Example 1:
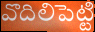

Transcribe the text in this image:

వొదిలిపెట్టి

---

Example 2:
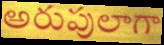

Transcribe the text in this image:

అరుపులాగా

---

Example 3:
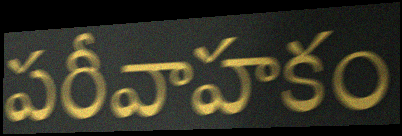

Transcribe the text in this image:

పరీవాహకం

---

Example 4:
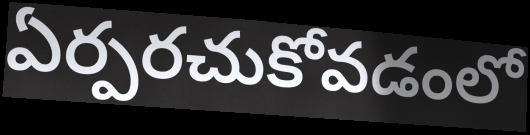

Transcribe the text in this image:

ఏర్పరచుకోవడంలో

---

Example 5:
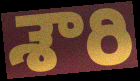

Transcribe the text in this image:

శౌరి